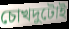
চোখদুটোই